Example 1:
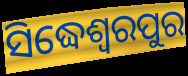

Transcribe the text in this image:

ସିଦ୍ଧେଶ୍ଵରପୁର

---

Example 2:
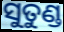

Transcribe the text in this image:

ସୁତୁଣ୍ଡ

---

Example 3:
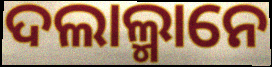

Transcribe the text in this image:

ଦଲାଲ୍ମାନେ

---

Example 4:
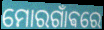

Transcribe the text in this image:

ମୋରଗାଁଵରେ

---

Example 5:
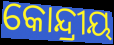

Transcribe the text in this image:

କୋନ୍ଦ୍ରୀୟ